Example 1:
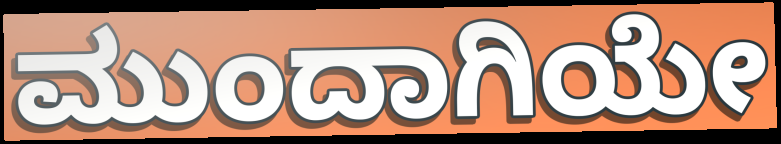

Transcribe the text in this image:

ಮುಂದಾಗಿಯೇ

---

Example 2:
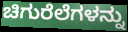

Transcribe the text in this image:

ಚಿಗುರೆಲೆಗಳನ್ನು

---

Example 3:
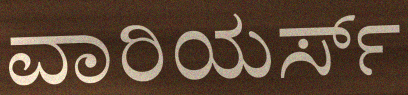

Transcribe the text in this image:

ವಾರಿಯರ್ಸ್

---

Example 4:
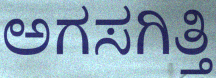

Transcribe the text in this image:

ಅಗಸಗಿತ್ತಿ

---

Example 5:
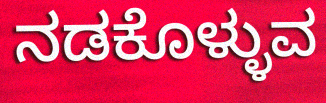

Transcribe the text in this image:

ನಡಕೊಳ್ಳುವ